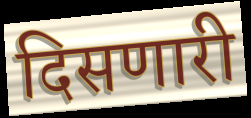
दिसणारी